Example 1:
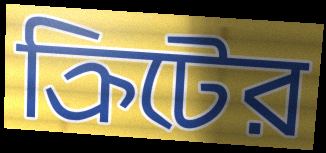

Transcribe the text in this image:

ক্রিটের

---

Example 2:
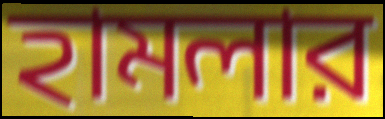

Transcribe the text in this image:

হামলার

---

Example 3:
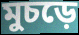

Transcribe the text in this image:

মুচড়ে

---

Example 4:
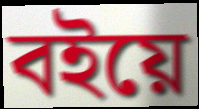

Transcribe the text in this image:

বইয়ে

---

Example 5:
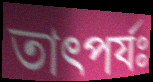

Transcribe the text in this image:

তাৎপর্যঃ